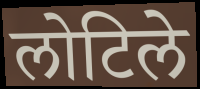
लोटिले